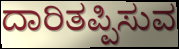
ದಾರಿತಪ್ಪಿಸುವ